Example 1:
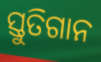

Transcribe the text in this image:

ସ୍ତୁତିଗାନ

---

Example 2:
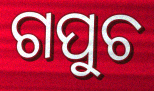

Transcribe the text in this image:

ଗପୁଚ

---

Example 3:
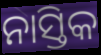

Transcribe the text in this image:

ନାସ୍ତିକ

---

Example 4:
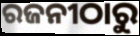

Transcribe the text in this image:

ରଜନୀଠାରୁ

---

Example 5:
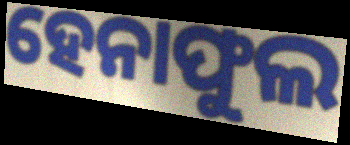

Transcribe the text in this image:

ହେନାଫୁଲ